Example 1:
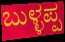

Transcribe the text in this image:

ಬುಳ್ಳಪ್ಪ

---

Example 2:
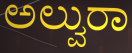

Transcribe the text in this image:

ಅಲ್ವುರಾ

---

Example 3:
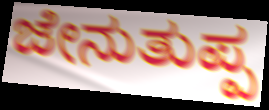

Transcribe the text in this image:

ಜೇನುತುಪ್ಪ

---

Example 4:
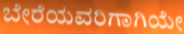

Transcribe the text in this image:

ಬೇರೆಯವರಿಗಾಗಿಯೇ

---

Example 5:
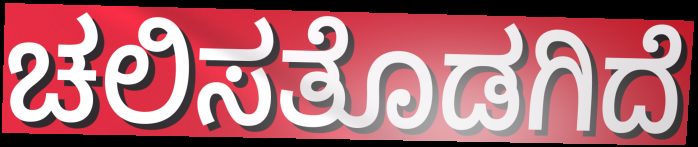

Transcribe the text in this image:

ಚಲಿಸತೊಡಗಿದೆ